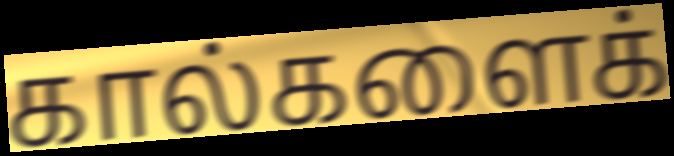
கால்களைக்